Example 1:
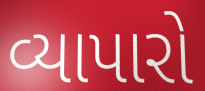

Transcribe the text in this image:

વ્યાપારો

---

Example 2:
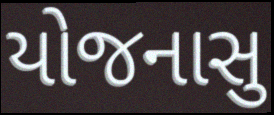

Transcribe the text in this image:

યોજનાસુ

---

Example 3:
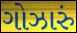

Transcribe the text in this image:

ગોઝારું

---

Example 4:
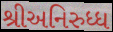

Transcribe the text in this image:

શ્રીઅનિરુધ્ધ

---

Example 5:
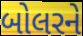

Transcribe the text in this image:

બોલરને